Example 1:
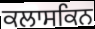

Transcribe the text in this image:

ਕਲਾਸਕਿਨ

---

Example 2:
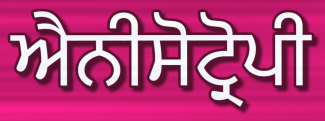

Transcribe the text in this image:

ਐਨੀਸੋਟ੍ਰੋਪੀ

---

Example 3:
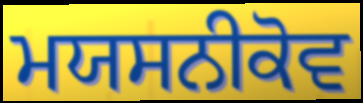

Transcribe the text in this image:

ਮਯਸਨੀਕੋਵ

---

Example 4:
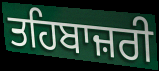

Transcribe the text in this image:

ਤਹਿਬਾਜ਼ਰੀ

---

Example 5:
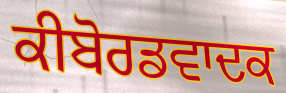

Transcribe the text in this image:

ਕੀਬੋਰਡਵਾਦਕ